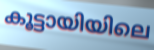
കൂട്ടായിയിലെ